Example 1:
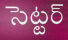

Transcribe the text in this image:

సెట్టర్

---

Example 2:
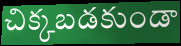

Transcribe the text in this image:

చిక్కబడకుండా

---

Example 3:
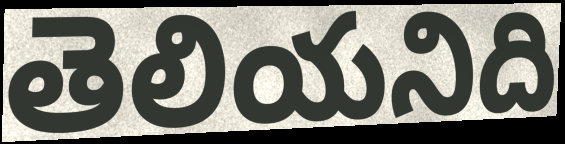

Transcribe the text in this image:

తెలియనిది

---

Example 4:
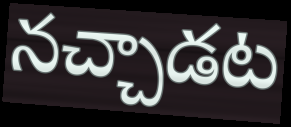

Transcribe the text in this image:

నచ్చాడట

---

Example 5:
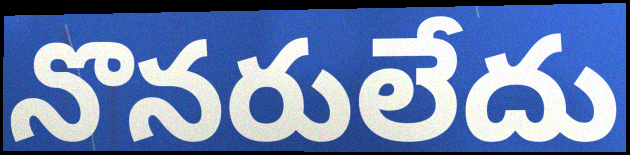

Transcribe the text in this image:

నొనరులేదు